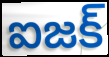
ఐజక్